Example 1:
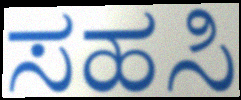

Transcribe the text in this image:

ಸಹಸಿ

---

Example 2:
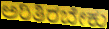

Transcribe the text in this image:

ಅರಿತಿರಬೇಕು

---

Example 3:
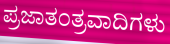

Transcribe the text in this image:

ಪ್ರಜಾತಂತ್ರವಾದಿಗಳು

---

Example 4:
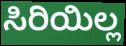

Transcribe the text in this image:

ಸಿರಿಯಿಲ್ಲ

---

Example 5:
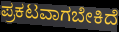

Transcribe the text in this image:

ಪ್ರಕಟವಾಗಬೇಕಿದೆ